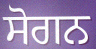
ਸੋਗਨ